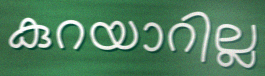
കുറയാറില്ല